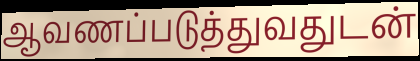
ஆவணப்படுத்துவதுடன்